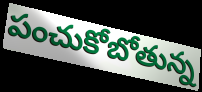
పంచుకోబోతున్న